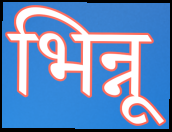
भिन्नू